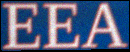
EEA